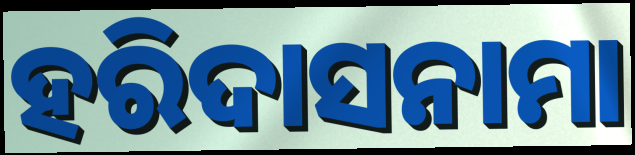
ହରିଦାସନାମା